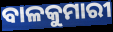
ବାଳକୁମାରୀ